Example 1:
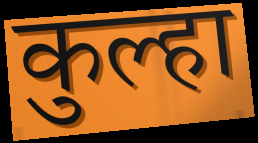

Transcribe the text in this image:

कुल्हा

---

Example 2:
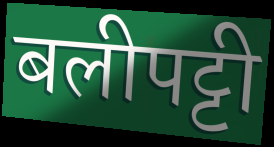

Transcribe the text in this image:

बलीपट्टी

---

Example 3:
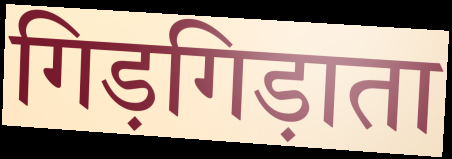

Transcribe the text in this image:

गिड़गिड़ाता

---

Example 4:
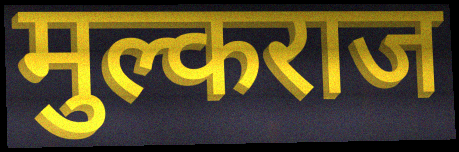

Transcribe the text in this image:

मुल्कराज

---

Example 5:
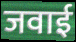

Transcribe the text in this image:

जवाई